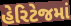
હેરિટેજમાં